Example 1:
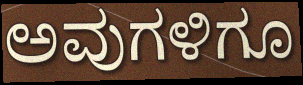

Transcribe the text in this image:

ಅವುಗಳಿಗೂ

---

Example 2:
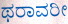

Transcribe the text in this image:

ಥರಾವರೀ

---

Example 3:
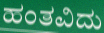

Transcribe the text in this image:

ಹಂತವಿದು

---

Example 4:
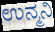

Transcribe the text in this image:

ಉನ್ಮನಿ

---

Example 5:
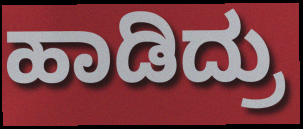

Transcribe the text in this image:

ಹಾಡಿದ್ರು